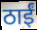
ठाईं